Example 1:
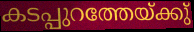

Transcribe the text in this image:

കടപ്പുറത്തേയ്ക്കു്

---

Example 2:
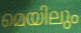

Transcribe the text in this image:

മെയിലും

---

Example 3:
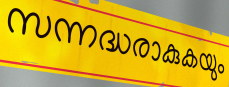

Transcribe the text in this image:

സന്നദ്ധരാകുകയും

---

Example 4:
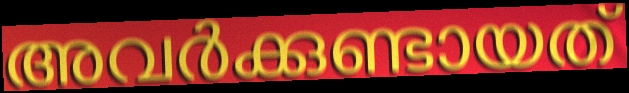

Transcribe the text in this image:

അവർക്കുണ്ടായത്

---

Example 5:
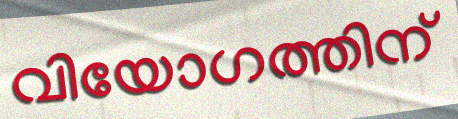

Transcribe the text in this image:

വിയോഗത്തിന്